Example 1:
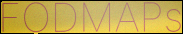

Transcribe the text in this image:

FODMAPs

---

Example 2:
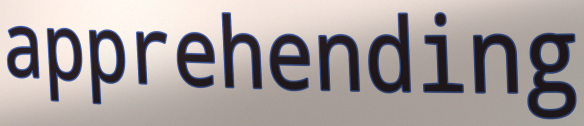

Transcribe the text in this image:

apprehending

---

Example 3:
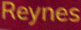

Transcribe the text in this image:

Reynes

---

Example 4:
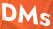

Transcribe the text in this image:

DMs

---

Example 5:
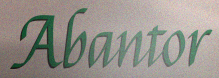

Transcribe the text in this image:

Abantor